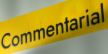
Commentarial